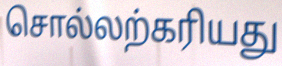
சொல்லற்கரியது